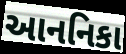
આનનિકા